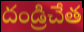
దండ్రిచేత